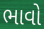
ભાવો